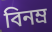
বিনম্র